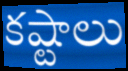
కష్టాలు